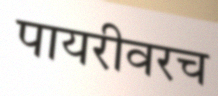
पायरीवरच